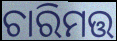
ଚାରିମତ୍ତ